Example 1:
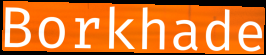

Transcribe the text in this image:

Borkhade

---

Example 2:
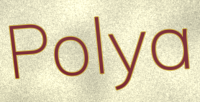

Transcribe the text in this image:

Polya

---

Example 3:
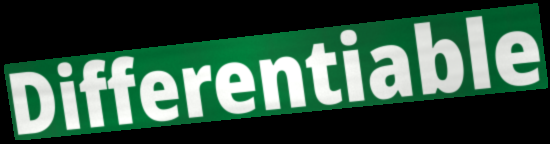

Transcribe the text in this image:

Differentiable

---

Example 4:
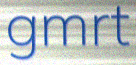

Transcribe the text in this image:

gmrt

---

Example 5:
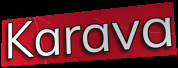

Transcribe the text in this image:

Karava